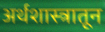
अर्थशास्त्रातून